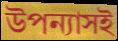
উপন্যাসই